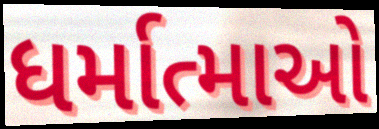
ધર્માત્માઓ